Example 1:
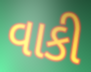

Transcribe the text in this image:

વાકી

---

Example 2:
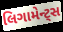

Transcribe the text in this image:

લિગામેન્ટ્સ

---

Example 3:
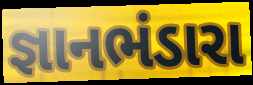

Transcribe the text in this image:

જ્ઞાનભંડારા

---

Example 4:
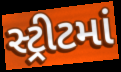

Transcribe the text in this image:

સ્ટ્રીટમાં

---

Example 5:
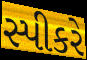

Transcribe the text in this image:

સ્પીકરે